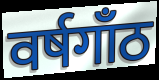
वर्षगाँठ